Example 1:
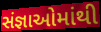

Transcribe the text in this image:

સંજ્ઞાઓમાંથી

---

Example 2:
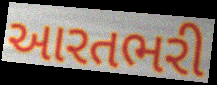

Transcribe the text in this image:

આરતભરી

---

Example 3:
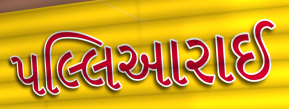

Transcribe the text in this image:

પલ્લિઆરાઈ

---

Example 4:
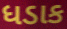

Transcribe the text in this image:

ધડાક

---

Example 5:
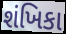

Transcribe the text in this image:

શંખિકા